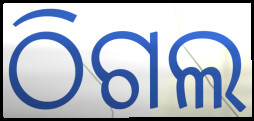
ଠିଗଲ